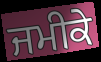
ਜਮੀਕੇ